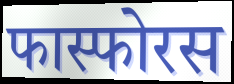
फास्‍फोरस